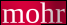
mohr